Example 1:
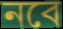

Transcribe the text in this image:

নবে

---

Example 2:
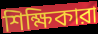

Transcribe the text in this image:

শিক্ষিকারা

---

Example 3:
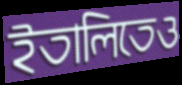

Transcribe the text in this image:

ইতালিতেও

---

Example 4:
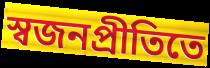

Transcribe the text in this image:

স্বজনপ্রীতিতে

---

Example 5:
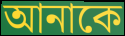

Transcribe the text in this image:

আনাকে